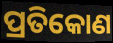
ପ୍ରତିକୋଣ